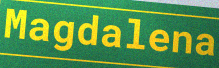
Magdalena